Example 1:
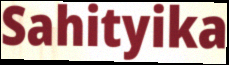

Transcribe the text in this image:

Sahityika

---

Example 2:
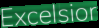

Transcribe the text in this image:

Excelsior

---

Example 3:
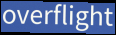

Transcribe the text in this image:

overflight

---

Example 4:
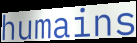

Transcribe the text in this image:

humains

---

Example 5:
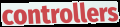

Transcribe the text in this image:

controllers